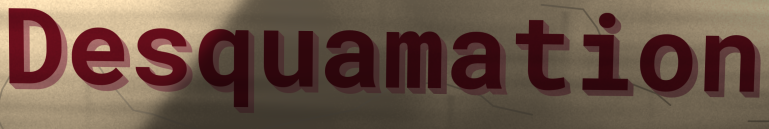
Desquamation